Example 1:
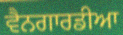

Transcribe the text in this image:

ਵੈਨਗਾਰਡੀਆ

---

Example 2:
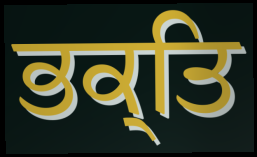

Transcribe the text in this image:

ਭਕ੍ਤਿ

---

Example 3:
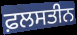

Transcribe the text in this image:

ਫ਼ਲਸਤੀਨ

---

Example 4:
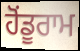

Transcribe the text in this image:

ਹੋਂਡੂਰਾਮ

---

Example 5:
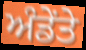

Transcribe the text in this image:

ਅੰਡੇਂਤੇ